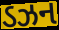
ડઝન